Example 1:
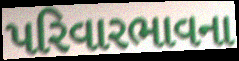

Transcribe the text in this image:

પરિવારભાવના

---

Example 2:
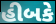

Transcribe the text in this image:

હીબકે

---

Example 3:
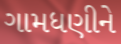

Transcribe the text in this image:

ગામધણીને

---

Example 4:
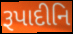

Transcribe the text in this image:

રૂપાદીનિ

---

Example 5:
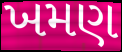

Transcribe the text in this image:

ખમણ